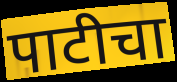
पाटीचा